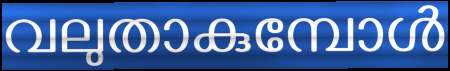
വലുതാകുമ്പോൾ